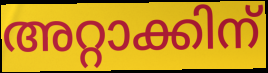
അറ്റാക്കിന്